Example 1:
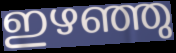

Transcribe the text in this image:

ഇഴഞ്ഞു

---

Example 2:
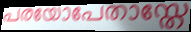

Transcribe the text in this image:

പരയോപേതാസ്തേ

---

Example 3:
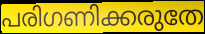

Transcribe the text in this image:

പരിഗണിക്കരുതേ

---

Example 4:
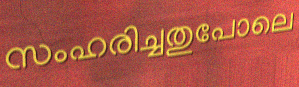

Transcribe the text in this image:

സംഹരിച്ചതുപോലെ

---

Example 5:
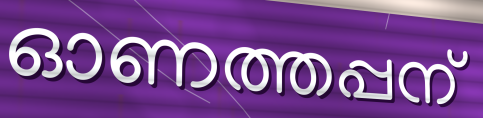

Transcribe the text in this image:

ഓണത്തപ്പന്